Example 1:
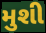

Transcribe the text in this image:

મુશી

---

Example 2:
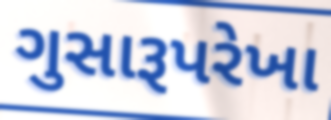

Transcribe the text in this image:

ગુસારૂપરેખા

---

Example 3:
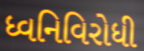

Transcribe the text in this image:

ધ્વનિવિરોધી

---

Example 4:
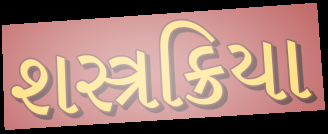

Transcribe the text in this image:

શસ્ત્રક્રિયા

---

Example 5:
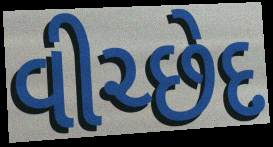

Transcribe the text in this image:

વીચ્છેદ